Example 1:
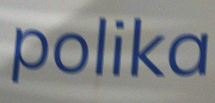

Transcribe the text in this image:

polika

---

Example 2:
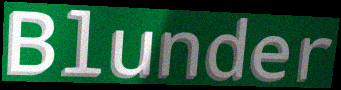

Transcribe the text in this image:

Blunder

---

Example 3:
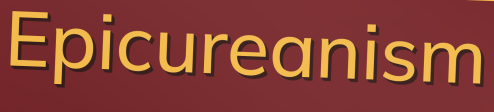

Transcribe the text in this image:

Epicureanism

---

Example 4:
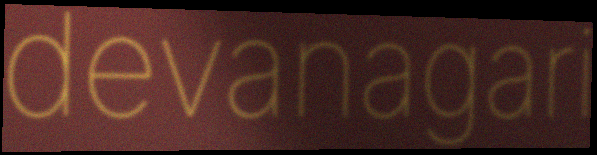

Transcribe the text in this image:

devanagari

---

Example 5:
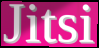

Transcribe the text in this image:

Jitsi